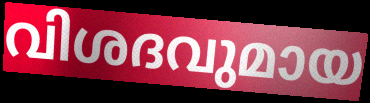
വിശദവുമായ